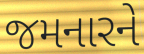
જમનારને